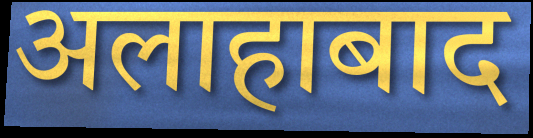
अलाहाबाद